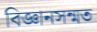
বিজ্ঞানসন্মত